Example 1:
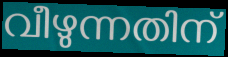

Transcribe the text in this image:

വീഴുന്നതിന്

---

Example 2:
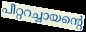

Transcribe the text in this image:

പീറ്ററച്ചായന്റെ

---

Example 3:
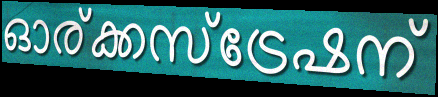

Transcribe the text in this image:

ഓര്ക്കസ്ട്രേഷന്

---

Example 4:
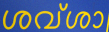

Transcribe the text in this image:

ശവ്ശാ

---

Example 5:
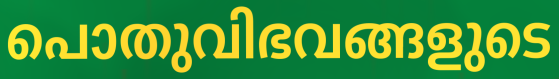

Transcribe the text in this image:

പൊതുവിഭവങ്ങളുടെ